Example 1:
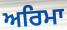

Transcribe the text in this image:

ਅਰਿਮਾ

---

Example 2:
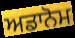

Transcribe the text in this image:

ਅਡਾਨੋਮ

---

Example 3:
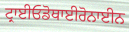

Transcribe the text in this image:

ਟ੍ਰਾਈਓਡੋਥਾਈਰੋਨਾਈਨ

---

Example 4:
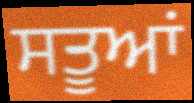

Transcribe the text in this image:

ਸਤੂਆਂ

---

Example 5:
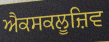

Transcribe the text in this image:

ਐਕਸਕਲੂਜ਼ਿਵ